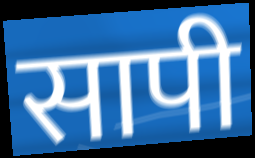
सापी